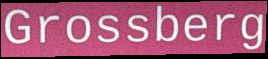
Grossberg